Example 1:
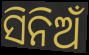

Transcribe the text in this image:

ସିନିଅଁ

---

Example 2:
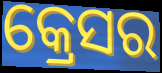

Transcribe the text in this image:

କ୍ରେସର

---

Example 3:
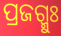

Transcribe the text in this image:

ପ୍ରଜଗ୍ମୁଃ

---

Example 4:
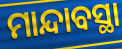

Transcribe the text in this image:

ମାନ୍ଦାବସ୍ଥା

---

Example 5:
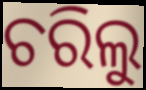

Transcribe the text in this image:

ଚରିଲୁ